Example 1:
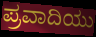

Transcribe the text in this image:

ಪ್ರವಾದಿಯು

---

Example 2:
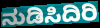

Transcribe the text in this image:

ನುಡಿಸಿದಿರಿ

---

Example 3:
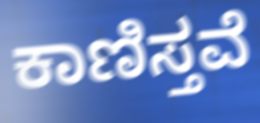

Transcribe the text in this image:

ಕಾಣಿಸ್ತವೆ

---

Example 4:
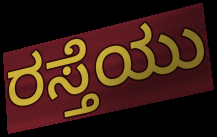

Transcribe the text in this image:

ರಸ್ತೆಯು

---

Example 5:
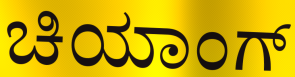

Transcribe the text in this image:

ಚಿಯಾಂಗ್